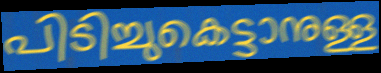
പിടിച്ചുകെട്ടാനുള്ള